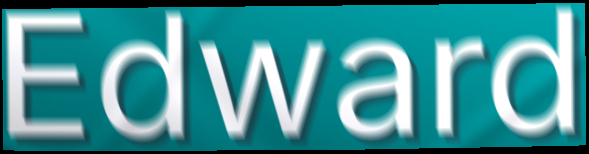
Edward